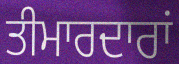
ਤੀਮਾਰਦਾਰਾਂ